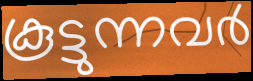
കൂട്ടുന്നവർ